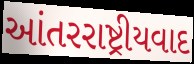
આંતરરાષ્ટ્રીયવાદ